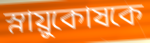
স্নায়ুকোষকে